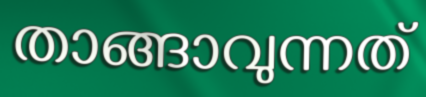
താങ്ങാവുന്നത്